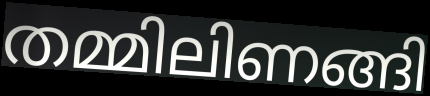
തമ്മിലിണങ്ങി